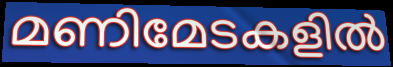
മണിമേടകളിൽ